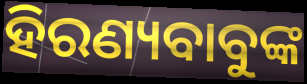
ହିରଣ୍ୟବାବୁଙ୍କ